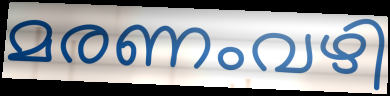
മരണംവഴി